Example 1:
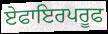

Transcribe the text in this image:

ਏਫਾਇਰਪਰੂਫ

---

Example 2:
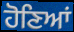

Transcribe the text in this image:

ਹੋਣਿਆਂ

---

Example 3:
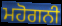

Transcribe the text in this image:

ਮਹੋਗਨੀ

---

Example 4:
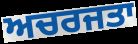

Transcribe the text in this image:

ਅਚਰਜਤਾ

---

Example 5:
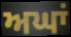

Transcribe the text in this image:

ਅਘਾਂ